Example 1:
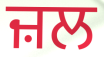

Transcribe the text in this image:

ਜ਼ਲ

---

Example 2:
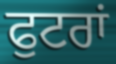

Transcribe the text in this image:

ਫੁਟਰਾਂ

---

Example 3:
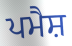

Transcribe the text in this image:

ਪਮੈਸ਼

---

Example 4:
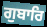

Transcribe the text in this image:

ਗੁਬਾਰਿ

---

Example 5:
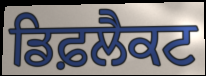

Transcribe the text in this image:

ਡਿਫ਼ਲੈਕਟ